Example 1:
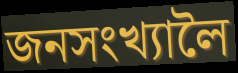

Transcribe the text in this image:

জনসংখ্যালৈ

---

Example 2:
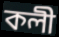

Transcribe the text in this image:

কলী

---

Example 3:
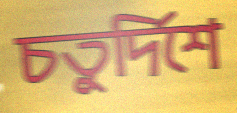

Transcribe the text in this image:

চতুৰ্দিশে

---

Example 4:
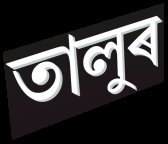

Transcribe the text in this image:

তালুৰ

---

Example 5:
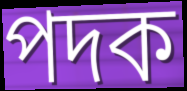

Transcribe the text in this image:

পদক